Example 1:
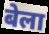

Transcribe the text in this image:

बेला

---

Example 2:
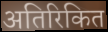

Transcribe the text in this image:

अतिरिकित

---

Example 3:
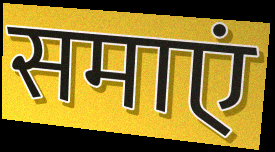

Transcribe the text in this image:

समाएं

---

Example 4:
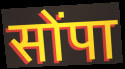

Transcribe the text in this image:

सोंपा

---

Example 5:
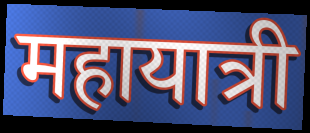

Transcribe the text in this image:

महायात्री